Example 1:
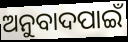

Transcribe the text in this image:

ଅନୁବାଦପାଇଁ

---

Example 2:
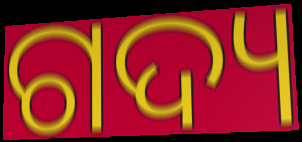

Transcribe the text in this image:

ଗଦ୍ୟ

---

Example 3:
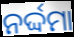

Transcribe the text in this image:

ନର୍ଦ୍ଦମା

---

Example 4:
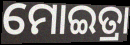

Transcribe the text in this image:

ମୋଇତ୍ରା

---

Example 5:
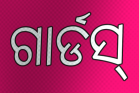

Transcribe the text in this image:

ଗାର୍ଡସ୍